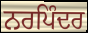
ਨਰਪਿੰਦਰ